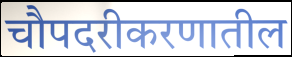
चौपदरीकरणातील